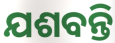
ଯଶବନ୍ତି